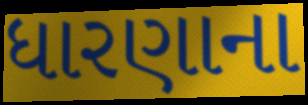
ધારણાના